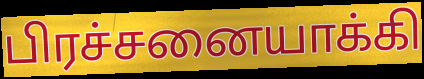
பிரச்சனையாக்கி